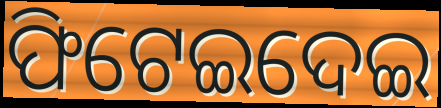
ଫିଟେଇଦେଇ